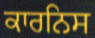
ਕਾਰਨਿਸ